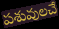
పశువులచే